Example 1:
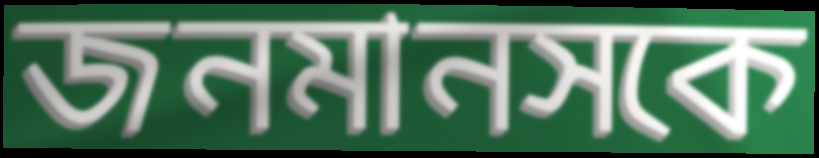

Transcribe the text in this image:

জনমানসকে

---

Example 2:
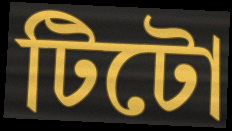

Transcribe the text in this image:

টিটো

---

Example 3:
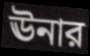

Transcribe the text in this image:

ঊনার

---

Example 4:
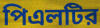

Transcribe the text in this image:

পিএলটির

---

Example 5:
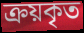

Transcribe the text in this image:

ক্রয়কৃত